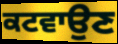
ਕਟਵਾਉਣ